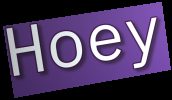
Hoey